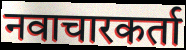
नवाचारकर्ता